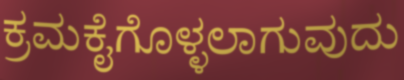
ಕ್ರಮಕೈಗೊಳ್ಳಲಾಗುವುದು